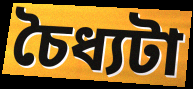
চৈধ্যটা